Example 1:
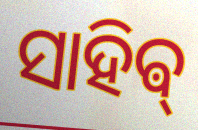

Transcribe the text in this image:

ସାହିଵ୍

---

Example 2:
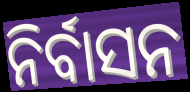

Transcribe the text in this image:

ନିର୍ବାସନ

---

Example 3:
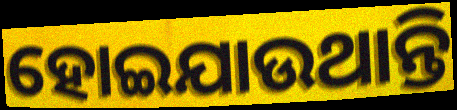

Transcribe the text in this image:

ହୋଇଯାଉଥାନ୍ତି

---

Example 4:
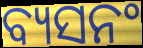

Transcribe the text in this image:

ବ୍ୟସନଂ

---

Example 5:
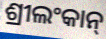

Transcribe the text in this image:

ଶ୍ରୀଲଂକାନ୍